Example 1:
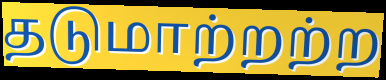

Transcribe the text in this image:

தடுமாற்றற்ற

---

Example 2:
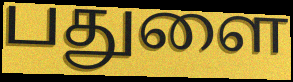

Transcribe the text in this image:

பதுளை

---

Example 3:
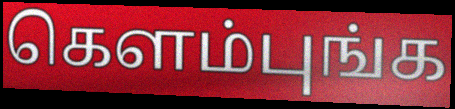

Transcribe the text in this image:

கெளம்புங்க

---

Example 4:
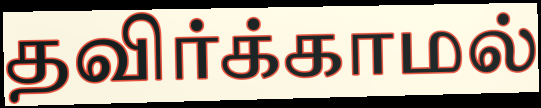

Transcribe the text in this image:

தவிர்க்காமல்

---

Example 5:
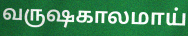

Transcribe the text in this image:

வருஷகாலமாய்